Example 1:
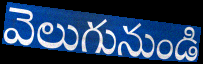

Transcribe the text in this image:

వెలుగునుండి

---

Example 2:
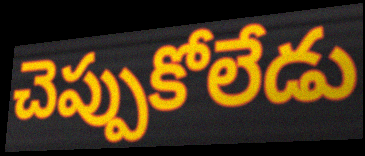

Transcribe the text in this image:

చెప్పుకోలేడు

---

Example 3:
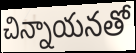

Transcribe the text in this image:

చిన్నాయనతో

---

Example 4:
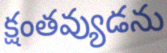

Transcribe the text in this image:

క్షంతవ్యుడను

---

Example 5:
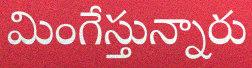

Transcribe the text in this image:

మింగేస్తున్నారు